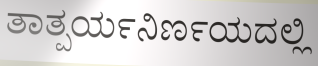
ತಾತ್ಪರ್ಯನಿರ್ಣಯದಲ್ಲಿ